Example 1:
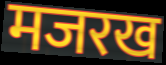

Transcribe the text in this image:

मजरख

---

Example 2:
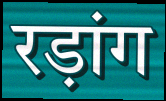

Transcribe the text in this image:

रड़ांग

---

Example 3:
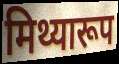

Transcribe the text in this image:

मिथ्यारूप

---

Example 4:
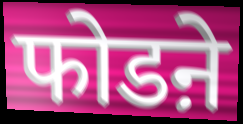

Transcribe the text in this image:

फोडऩे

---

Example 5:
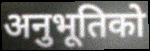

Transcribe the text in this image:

अनुभूतिको